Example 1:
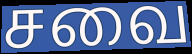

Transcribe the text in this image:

சவை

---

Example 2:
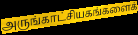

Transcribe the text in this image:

அருங்காட்சியகங்களைக்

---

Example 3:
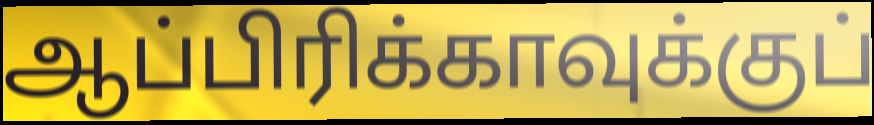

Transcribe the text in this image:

ஆப்பிரிக்காவுக்குப்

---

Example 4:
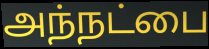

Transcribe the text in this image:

அந்நட்பை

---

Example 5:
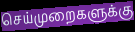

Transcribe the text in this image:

செய்முறைகளுக்கு